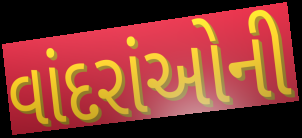
વાંદરાંઓની